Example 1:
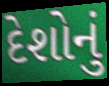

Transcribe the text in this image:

દેશોનું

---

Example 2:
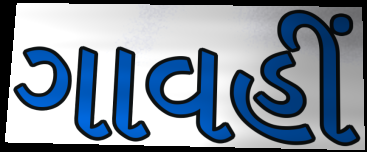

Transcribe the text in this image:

ગાવહીં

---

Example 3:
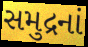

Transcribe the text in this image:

સમુદ્રનાં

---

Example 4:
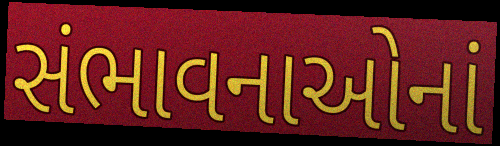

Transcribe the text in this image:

સંભાવનાઓનાં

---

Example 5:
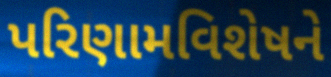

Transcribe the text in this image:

પરિણામવિશેષને